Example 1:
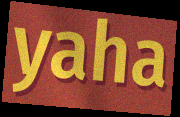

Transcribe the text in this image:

yaha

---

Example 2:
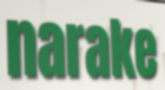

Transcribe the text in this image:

narake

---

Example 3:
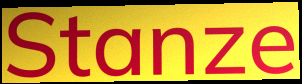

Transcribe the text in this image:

Stanze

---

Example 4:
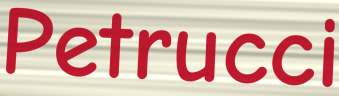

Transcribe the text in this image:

Petrucci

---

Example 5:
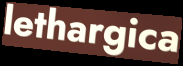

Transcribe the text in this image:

lethargica